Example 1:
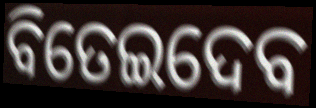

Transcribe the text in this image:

ବିତେଇଦେବ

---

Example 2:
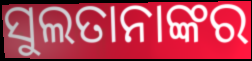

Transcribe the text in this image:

ସୁଲତାନାଙ୍କର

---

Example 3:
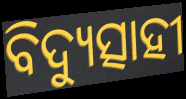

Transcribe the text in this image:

ବିଦ୍ୟୁତ୍ସାହୀ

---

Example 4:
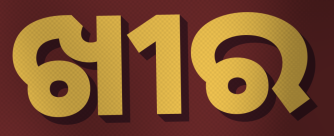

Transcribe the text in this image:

ଖୀର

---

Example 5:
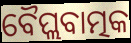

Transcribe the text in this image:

ବୈପ୍ଲବାତ୍ମକ